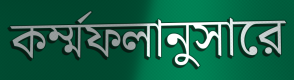
কর্ম্মফলানুসারে